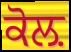
ਕੋਲ਼